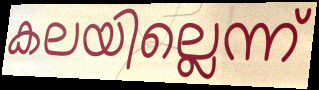
കലയില്ലെന്ന്